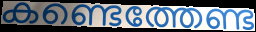
കണ്ടെത്തേണ്ട